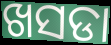
ଖସଡା